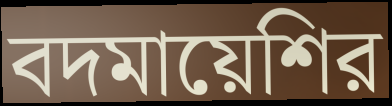
বদমায়েশির